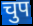
चुप